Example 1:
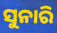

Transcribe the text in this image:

ସୁନାରି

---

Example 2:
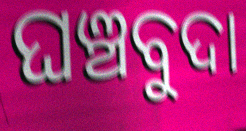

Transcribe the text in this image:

ଘଞ୍ଚବୁଦା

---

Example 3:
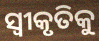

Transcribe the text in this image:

ସ୍ୱୀକୃତିକୁ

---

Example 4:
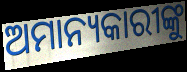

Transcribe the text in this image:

ଅମାନ୍ୟକାରୀଙ୍କୁ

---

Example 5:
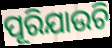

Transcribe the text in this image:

ପୂରିଯାଉଚି